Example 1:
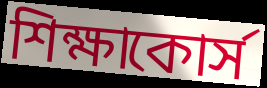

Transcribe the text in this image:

শিক্ষাকোর্স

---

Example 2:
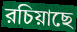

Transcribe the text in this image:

রচিয়াছে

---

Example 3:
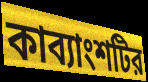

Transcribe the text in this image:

কাব্যাংশটির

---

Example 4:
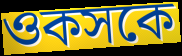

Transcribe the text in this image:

ওকসকে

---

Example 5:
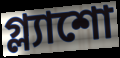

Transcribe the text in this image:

গ্ল্যাশো